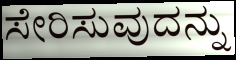
ಸೇರಿಸುವುದನ್ನು